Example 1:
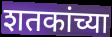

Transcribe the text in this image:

शतकांच्या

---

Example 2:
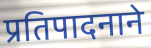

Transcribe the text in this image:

प्रतिपादनाने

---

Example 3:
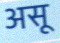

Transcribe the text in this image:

असू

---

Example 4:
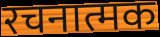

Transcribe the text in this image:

रचनात्मक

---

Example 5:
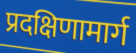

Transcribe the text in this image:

प्रदक्षिणामार्ग